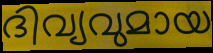
ദിവ്യവുമായ